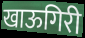
खाऊगिरी